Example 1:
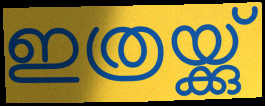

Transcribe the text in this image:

ഇത്രയ്ക്കു്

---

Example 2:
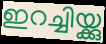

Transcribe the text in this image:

ഇറച്ചിയ്ക്കു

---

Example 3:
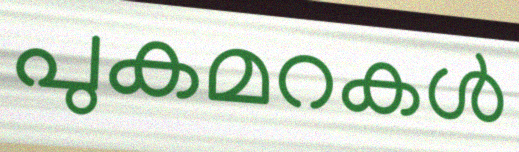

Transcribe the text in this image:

പുകമറകൾ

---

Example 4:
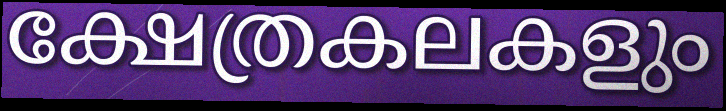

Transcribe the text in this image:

ക്ഷേത്രകലകളും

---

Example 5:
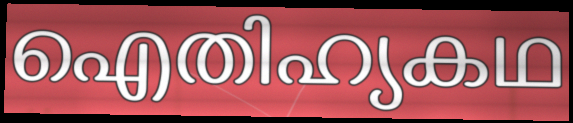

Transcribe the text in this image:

ഐതിഹ്യകഥ